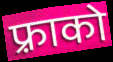
फ़्राको